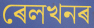
ৰেলখনৰ